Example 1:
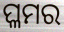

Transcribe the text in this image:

ପ୍ଳମର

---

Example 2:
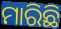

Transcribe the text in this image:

ମାରିଛି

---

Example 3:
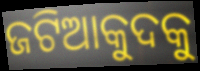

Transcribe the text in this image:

ଜଟିଆକୁଦକୁ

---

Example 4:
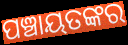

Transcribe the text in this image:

ପଞ୍ଚାୟତଙ୍କର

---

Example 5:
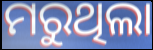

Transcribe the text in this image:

ମରୁଥିଲା